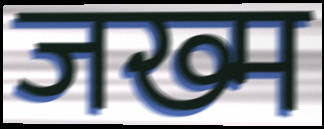
जख्म